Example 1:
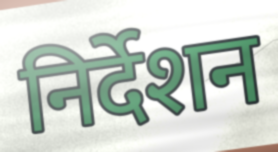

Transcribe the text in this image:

निर्देशन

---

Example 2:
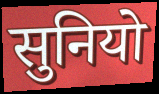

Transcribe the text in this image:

सुनियो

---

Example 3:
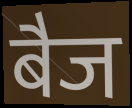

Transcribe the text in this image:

बैज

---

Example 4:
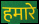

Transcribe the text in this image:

हमारे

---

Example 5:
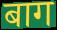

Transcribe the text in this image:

बाग